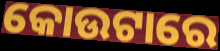
କୋଉଟାରେ